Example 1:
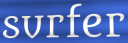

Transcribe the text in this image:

surfer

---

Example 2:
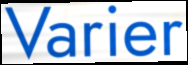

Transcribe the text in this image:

Varier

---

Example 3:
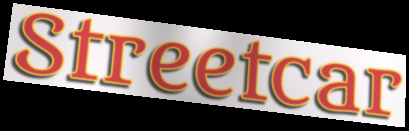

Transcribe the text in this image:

Streetcar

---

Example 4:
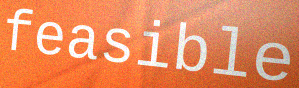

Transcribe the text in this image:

feasible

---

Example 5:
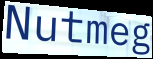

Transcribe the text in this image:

Nutmeg